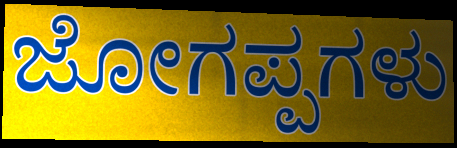
ಜೋಗಪ್ಪಗಳು